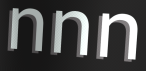
nnn